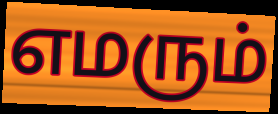
எமரும்